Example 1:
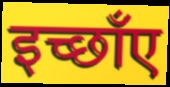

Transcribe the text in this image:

इच्छाँए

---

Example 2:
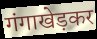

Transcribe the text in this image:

गंगाखेड़कर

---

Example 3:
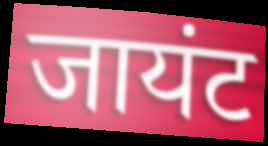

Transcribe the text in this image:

जायंट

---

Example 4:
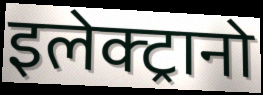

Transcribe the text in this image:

इलेक्ट्रानो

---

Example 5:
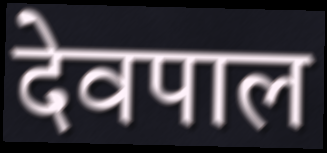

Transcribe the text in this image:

देवपाल